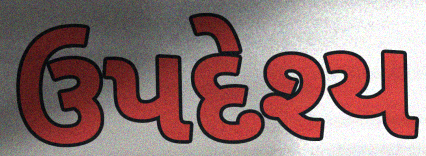
ઉપદેશ્ય